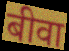
बीवा